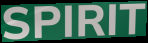
SPIRIT